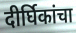
दीर्घिकांचा